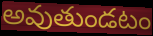
అవుతుండటం